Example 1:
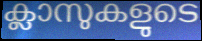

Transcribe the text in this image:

ക്ലാസുകളുടെ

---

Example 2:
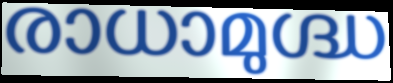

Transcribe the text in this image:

രാധാമുഗ്ദ്ധ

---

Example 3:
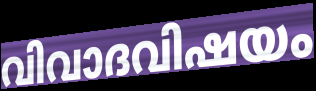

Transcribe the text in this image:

വിവാദവിഷയം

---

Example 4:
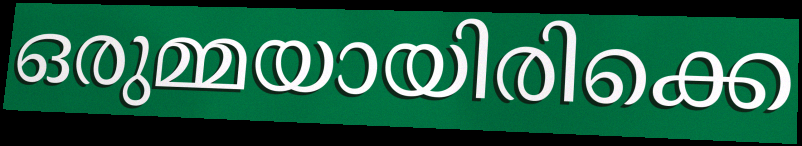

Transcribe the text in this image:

ഒരുമ്മയായിരിക്കെ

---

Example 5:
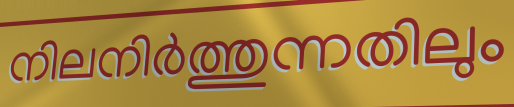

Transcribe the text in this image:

നിലനിർത്തുന്നതിലും